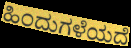
ಹಿಂದುಗಳೆಯದೆ